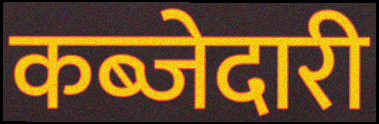
कब्जेदारी